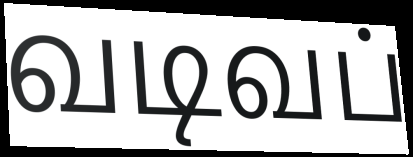
வடிவப்